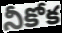
నీకోక